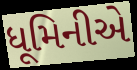
ધૂમિનીએ